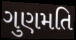
ગુણમતિ